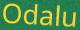
Odalu